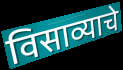
विसाव्याचे